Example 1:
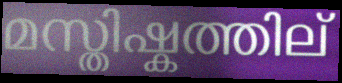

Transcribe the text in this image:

മസ്തിഷ്കത്തില്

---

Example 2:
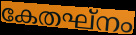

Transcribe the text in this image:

കേതഘ്നം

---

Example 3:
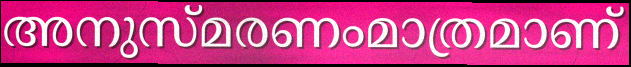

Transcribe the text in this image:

അനുസ്മരണംമാത്രമാണ്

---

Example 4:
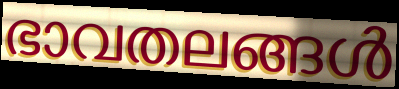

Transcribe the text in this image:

ഭാവതലങ്ങൾ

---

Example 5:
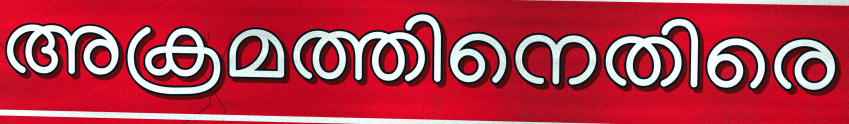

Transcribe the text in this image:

അക്രമത്തിനെതിരെ